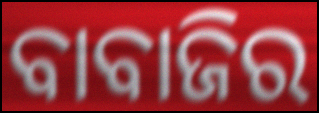
ବାବାଜିର